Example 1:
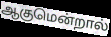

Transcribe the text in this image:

ஆகுமென்றால்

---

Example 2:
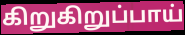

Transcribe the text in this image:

கிறுகிறுப்பாய்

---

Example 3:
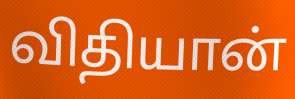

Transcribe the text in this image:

விதியான்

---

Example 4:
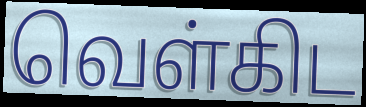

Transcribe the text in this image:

வெள்கிட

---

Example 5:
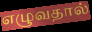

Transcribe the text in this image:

எழுவதால்